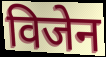
विजेन